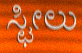
ಸ್ಟೀಲು